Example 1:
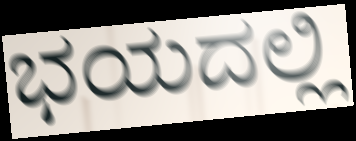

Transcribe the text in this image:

ಭಯದಲ್ಲಿ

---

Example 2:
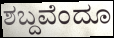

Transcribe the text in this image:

ಶಬ್ದವೆಂದೂ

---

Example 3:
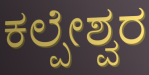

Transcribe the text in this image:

ಕಲ್ಪೇಶ್ವರ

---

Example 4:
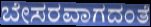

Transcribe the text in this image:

ಬೇಸರವಾಗದಂತೆ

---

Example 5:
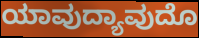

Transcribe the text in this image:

ಯಾವುದ್ಯಾವುದೊ